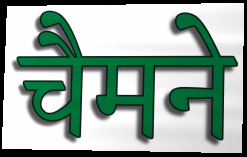
चैमने